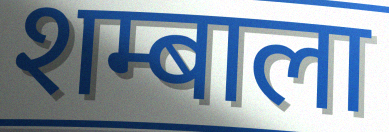
शम्बाला